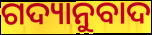
ଗଦ୍ୟାନୁବାଦ